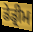
ਡੇਡ੍ਰੀਮ